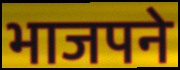
भाजपने